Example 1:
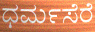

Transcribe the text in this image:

ಧರ್ಮಸೆರೆ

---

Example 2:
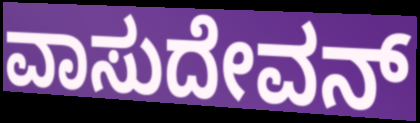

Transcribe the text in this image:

ವಾಸುದೇವನ್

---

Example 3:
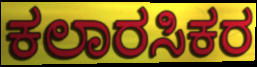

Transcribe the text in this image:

ಕಲಾರಸಿಕರ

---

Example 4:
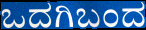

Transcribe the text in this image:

ಒದಗಿಬಂದ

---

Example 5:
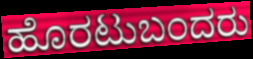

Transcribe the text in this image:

ಹೊರಟುಬಂದರು